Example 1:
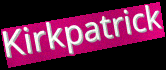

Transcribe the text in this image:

Kirkpatrick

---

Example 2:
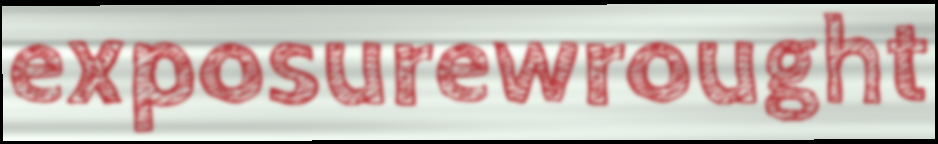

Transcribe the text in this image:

exposurewrought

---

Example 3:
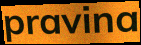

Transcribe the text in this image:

pravina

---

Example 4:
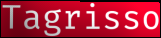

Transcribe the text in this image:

Tagrisso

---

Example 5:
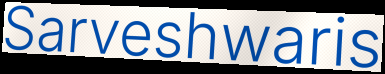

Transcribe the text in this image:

Sarveshwaris